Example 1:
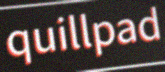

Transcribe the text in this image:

quillpad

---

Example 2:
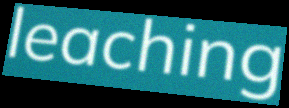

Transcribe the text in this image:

leaching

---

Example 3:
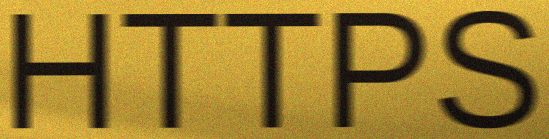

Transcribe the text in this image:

HTTPS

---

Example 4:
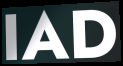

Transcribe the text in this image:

IAD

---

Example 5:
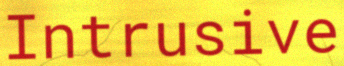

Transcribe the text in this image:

Intrusive